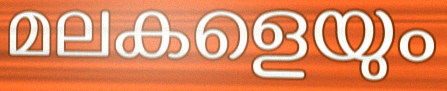
മലകളെയും